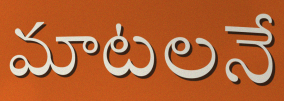
మాటలనే